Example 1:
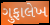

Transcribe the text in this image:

ગુફાલેખ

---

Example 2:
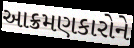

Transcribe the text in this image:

આક્રમણકારોને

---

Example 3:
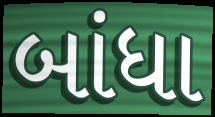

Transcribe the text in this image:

બાંધા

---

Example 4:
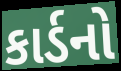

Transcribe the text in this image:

કાર્ડનો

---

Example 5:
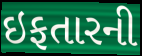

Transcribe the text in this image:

ઇફતારની